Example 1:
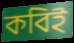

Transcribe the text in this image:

কবিই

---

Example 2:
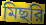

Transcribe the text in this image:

মিছরি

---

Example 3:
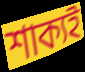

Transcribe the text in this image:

শাক্যই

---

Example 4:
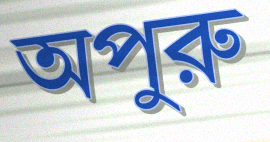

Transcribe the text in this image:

অপুরু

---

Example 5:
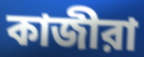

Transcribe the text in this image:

কাজীরা